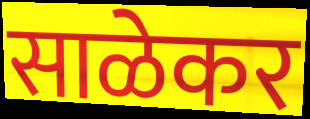
साळेकर